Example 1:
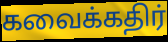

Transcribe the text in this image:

கவைக்கதிர்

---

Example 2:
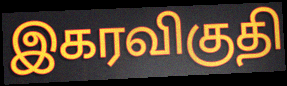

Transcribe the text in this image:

இகரவிகுதி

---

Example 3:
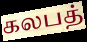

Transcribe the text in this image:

கலபத்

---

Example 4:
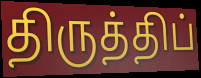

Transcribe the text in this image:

திருத்திப்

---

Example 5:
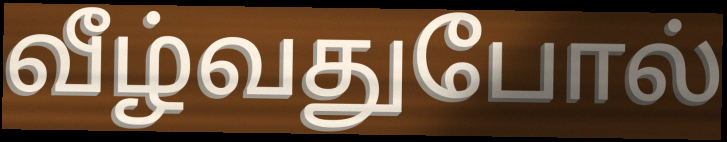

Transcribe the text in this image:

வீழ்வதுபோல்